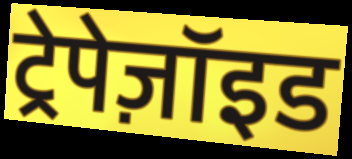
ट्रेपेज़ॉइड